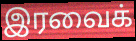
இரவைக்